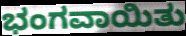
ಭಂಗವಾಯಿತು